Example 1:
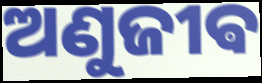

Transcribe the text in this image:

ଅଣୁଜୀଵ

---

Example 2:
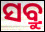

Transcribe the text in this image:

ସବ୍ରୁ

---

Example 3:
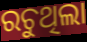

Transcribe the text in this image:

ରଚୁଥିଲା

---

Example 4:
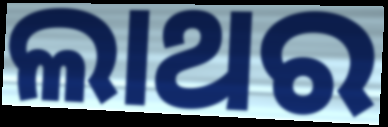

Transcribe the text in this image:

ଲାଥର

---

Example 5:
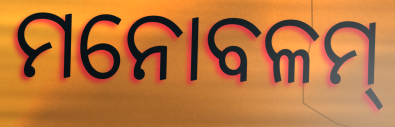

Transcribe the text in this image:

ମନୋବଳମ୍